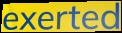
exerted